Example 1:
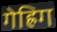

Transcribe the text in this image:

गेह्रिग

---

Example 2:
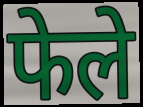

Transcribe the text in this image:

फेले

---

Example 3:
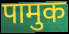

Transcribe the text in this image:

पामुक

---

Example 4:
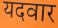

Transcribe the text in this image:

यदवार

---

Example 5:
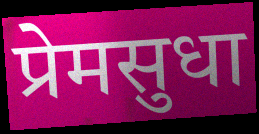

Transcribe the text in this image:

प्रेमसुधा